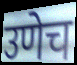
उणेच